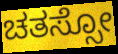
ಚತಸ್ಸೋ